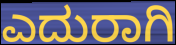
ಎದುರಾಗಿ